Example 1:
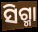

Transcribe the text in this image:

ସିଗ୍ମା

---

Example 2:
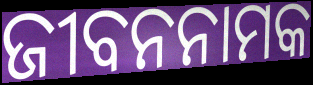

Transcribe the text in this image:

ଜୀବନନାମକ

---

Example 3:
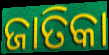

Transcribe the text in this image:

ଜାତିକା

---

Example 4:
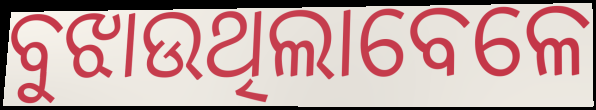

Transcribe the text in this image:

ବୁଝାଉଥିଲାବେଳେ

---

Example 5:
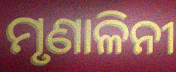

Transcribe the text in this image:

ମୃଣାଳିନୀ